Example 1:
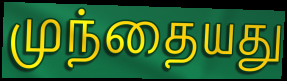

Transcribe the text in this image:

முந்தையது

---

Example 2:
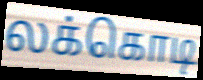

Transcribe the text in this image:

லக்கொடி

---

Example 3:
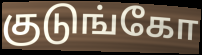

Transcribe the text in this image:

குடுங்கோ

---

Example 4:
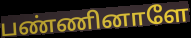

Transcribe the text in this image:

பண்ணினாளே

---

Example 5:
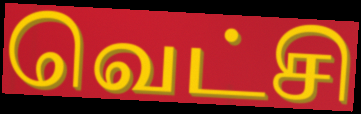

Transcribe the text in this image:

வெட்சி